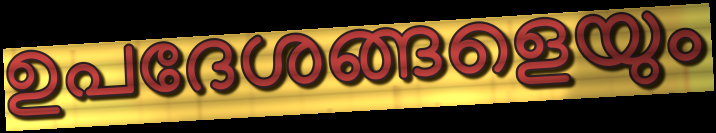
ഉപദേശങ്ങളെയും